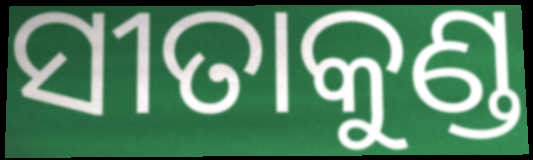
ସୀତାକୁଣ୍ଡ